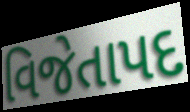
વિજેતાપદ